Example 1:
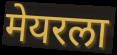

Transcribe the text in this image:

मेयरला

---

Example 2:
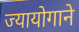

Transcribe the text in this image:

ज्यायोगाने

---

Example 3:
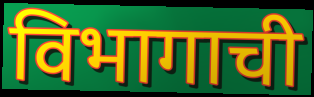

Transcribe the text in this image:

विभागाची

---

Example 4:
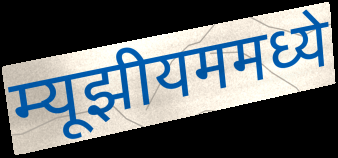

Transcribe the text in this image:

म्यूझीयममध्ये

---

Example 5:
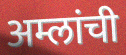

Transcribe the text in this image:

अम्‍लांची